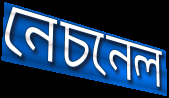
নেচনেল